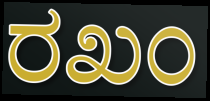
ರಖಂ